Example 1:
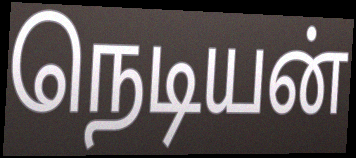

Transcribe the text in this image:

நெடியன்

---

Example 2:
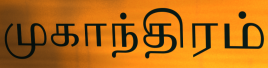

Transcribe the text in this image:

முகாந்திரம்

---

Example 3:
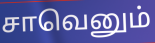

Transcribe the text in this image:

சாவெனும்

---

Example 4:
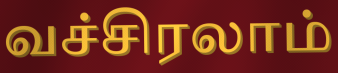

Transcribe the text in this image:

வச்சிரலாம்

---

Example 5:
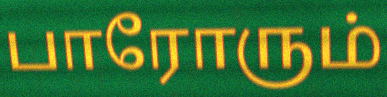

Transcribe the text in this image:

பாரோரும்